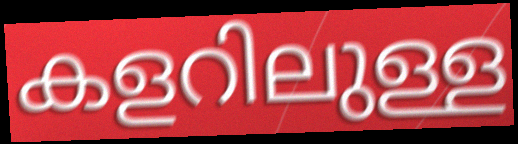
കളറിലുള്ള